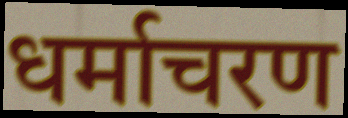
धर्माचरण